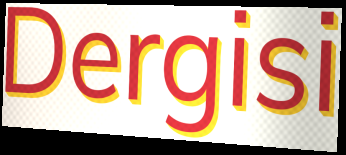
Dergisi